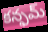
కన్ఫమ్